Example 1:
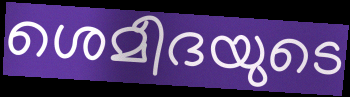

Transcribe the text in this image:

ശെമീദയുടെ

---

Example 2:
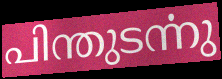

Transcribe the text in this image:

പിന്തുടൎന്നു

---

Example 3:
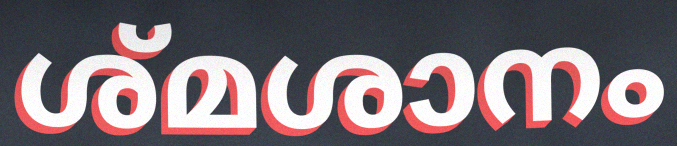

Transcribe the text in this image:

ശ്മശാനം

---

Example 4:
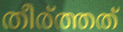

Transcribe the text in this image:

തീര്ത്തത്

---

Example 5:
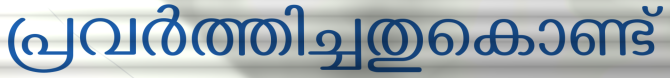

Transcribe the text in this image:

പ്രവർത്തിച്ചതുകൊണ്ട്